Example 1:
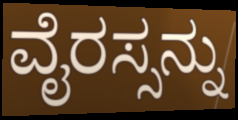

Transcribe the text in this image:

ವೈರಸ್ಸನ್ನು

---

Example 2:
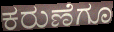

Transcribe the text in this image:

ಕರುಣೆಗೂ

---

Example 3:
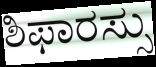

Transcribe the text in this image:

ಶಿಫಾರಸ್ಸು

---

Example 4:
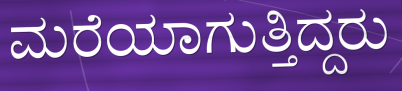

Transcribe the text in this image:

ಮರೆಯಾಗುತ್ತಿದ್ದರು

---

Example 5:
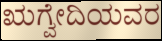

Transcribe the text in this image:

ಋಗ್ವೇದಿಯವರ